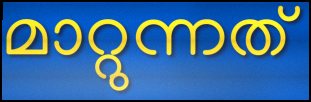
മാറ്റുന്നത്